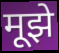
मूझे